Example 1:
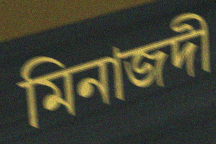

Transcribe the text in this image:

মিনাজদী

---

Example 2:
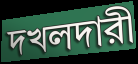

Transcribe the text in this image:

দখলদারী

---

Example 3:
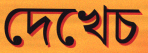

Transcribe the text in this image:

দেখেচ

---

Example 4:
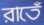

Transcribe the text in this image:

রাতেঁ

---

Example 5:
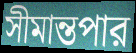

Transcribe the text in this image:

সীমান্তপার